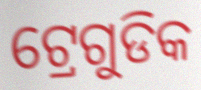
ଟ୍ରେଗୁଡିକ